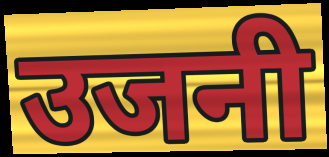
उजनी